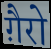
ग़ैरो